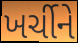
ખર્ચીને